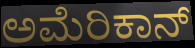
ಅಮೆರಿಕಾನ್